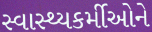
સ્વાસ્થ્યકર્મીઓને